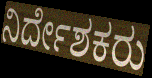
ನಿರ್ದೇಶಕರು